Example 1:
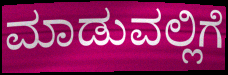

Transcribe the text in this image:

ಮಾಡುವಲ್ಲಿಗೆ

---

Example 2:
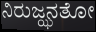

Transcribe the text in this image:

ನಿರುಜ್ಝನತೋ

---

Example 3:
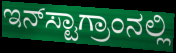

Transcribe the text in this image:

ಇನ್‌ಸ್ಟಾಗ್ರಾಂನಲ್ಲಿ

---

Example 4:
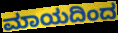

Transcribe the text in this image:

ಮಾಯದಿಂದ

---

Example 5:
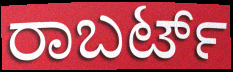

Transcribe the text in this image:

ರಾಬರ್ಟ್